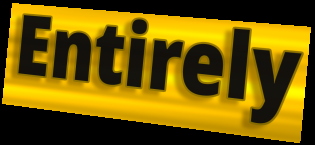
Entirely